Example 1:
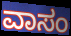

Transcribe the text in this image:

ವಾಸಂ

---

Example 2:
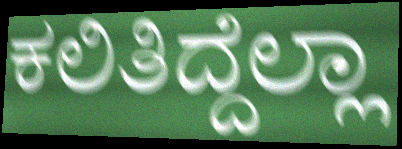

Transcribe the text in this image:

ಕಲಿತಿದ್ದೆಲ್ಲಾ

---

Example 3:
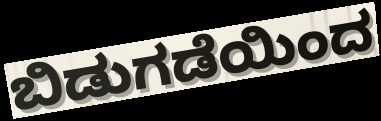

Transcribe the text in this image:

ಬಿಡುಗಡೆಯಿಂದ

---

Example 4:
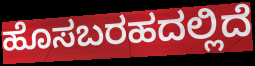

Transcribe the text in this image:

ಹೊಸಬರಹದಲ್ಲಿದೆ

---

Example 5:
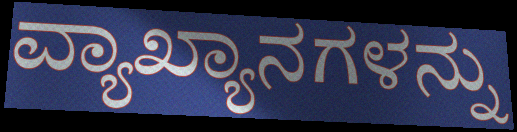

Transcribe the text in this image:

ವ್ಯಾಖ್ಯಾನಗಳನ್ನು